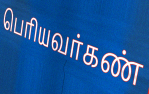
பெரியவர்கண்